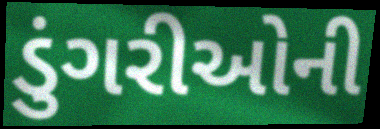
ડુંગરીઓની